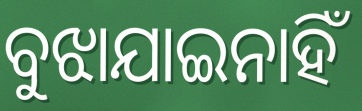
ବୁଝାଯାଇନାହିଁ